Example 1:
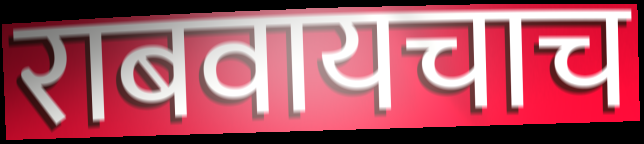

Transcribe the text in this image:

राबवायचाच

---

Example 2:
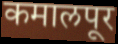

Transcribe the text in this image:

कमालपूर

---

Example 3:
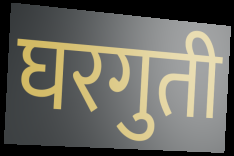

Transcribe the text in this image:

घरगुती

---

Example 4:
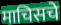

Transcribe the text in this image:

माचिसचे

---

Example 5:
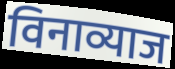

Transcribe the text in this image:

विनाव्याज